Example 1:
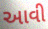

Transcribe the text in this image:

આવી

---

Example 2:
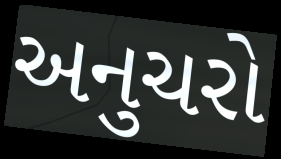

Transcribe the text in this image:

અનુચરો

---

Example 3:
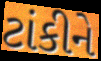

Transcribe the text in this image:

ટાંકીને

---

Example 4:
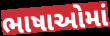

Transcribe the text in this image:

ભાષાઓમાં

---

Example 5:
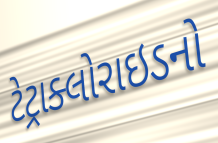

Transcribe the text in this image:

ટેટ્રાક્લોરાઇડનો